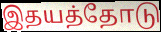
இதயத்தோடு